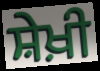
ਸ਼ੇਖ਼ੀ